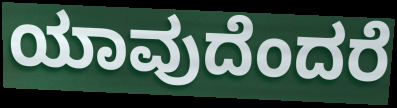
ಯಾವುದೆಂದರೆ